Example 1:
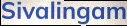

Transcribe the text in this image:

Sivalingam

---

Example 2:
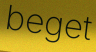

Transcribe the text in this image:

beget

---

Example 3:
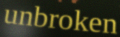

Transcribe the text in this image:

unbroken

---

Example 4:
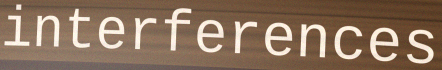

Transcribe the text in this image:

interferences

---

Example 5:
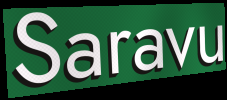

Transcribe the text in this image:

Saravu